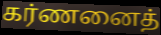
கர்ணனைத்